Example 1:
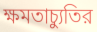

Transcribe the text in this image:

ক্ষমতাচ্যুতির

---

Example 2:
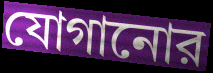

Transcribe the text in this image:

যোগানোর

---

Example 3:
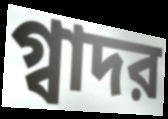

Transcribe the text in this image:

গ্বাদর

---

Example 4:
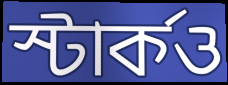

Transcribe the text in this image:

স্টার্কও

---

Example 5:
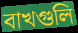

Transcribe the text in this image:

বাখগুলি